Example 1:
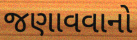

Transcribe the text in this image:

જણાવવાનો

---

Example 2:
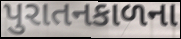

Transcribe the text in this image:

પુરાતનકાળના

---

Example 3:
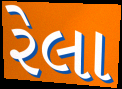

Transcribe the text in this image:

રેલા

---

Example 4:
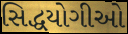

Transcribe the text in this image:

સિદ્ધયોગીઓ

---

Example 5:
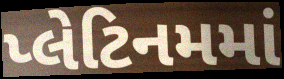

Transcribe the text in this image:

પ્લેટિનમમાં